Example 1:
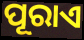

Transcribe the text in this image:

ପୂରାଏ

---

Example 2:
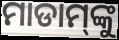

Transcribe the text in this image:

ମାଡାମ୍‌ଙ୍କୁ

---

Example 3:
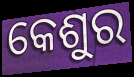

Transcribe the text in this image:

କେଶୁର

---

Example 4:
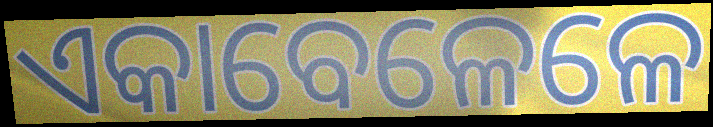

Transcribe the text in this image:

ଏକାବେଳେଳେ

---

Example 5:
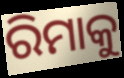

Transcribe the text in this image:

ରିମାକୁ